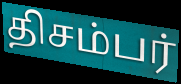
திசம்பர்